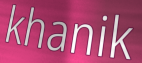
khanik